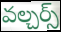
వల్చర్స్